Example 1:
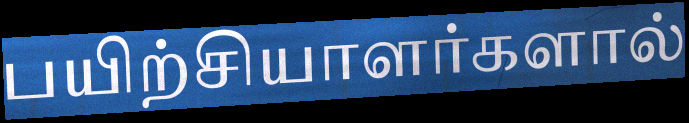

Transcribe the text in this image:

பயிற்சியாளர்களால்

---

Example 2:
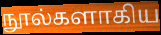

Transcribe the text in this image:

நூல்களாகிய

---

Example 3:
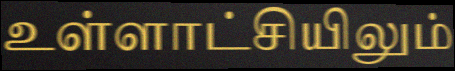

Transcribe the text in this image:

உள்ளாட்சியிலும்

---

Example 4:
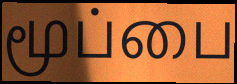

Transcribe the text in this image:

மூப்பை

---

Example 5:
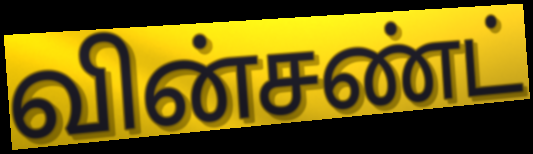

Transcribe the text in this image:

வின்சண்ட்